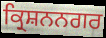
ਕ੍ਰਿਸ਼ਨਨਗਰ